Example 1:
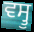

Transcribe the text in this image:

ਵਸ੍ਤੁ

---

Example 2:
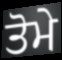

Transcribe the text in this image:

ਤੋਮੇ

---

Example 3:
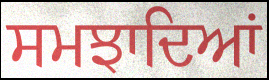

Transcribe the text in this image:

ਸਮਝਾਦਿਆਂ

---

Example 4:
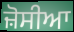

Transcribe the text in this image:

ਜ਼ੋਸੀਆ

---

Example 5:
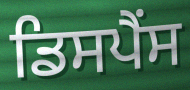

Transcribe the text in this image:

ਡਿਸਪੈਂਸ